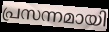
പ്രസന്നമായി